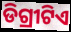
ଡିଗ୍ରୀଟିଏ